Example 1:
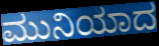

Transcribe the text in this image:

ಮುನಿಯಾದ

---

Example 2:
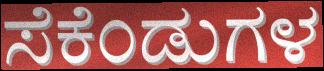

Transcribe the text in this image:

ಸೆಕೆಂಡುಗಳ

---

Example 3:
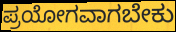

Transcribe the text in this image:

ಪ್ರಯೋಗವಾಗಬೇಕು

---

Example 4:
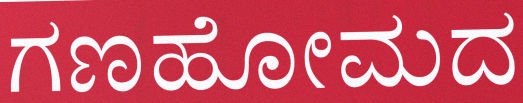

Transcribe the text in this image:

ಗಣಹೋಮದ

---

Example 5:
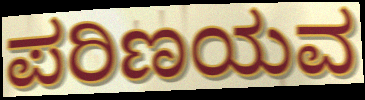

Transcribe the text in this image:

ಪರಿಣಯವ